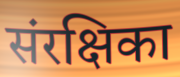
संरक्षिका